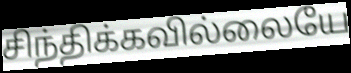
சிந்திக்கவில்லையே